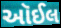
આૅઈલ